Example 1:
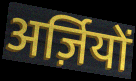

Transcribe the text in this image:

अर्ज़ियों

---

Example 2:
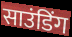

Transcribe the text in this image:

साउंडिंग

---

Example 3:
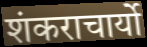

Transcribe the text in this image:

शंकराचार्यो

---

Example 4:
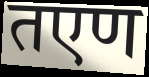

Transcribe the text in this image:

तएण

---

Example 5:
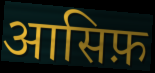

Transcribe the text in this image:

आसिफ़